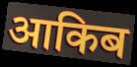
आकिब